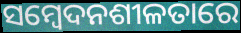
ସମ୍ବେଦନଶୀଳତାରେ